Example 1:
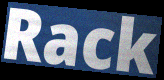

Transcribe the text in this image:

Rack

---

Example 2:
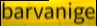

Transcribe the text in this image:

barvanige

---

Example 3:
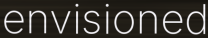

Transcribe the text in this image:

envisioned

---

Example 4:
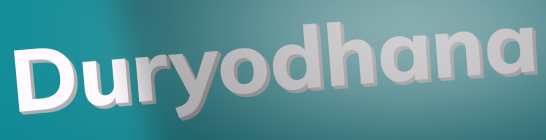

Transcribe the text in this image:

Duryodhana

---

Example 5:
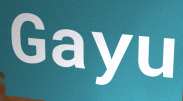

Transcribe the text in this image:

Gayu